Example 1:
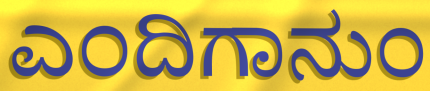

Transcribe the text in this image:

ಎಂದಿಗಾನುಂ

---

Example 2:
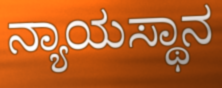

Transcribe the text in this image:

ನ್ಯಾಯಸ್ಥಾನ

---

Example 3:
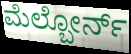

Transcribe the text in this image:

ಮೆಲ್ಬೋರ್ನ್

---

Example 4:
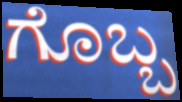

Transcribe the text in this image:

ಗೊಬ್ಬ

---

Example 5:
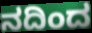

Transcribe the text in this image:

ನದಿಂದ